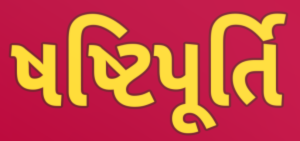
ષષ્ટિપૂર્તિ